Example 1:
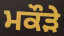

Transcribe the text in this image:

ਮਕੌੜੇ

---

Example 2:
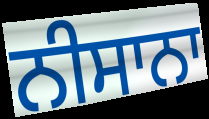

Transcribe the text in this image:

ਨੀਸਾਨਾ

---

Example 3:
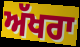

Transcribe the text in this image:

ਅੱਖਰਾ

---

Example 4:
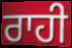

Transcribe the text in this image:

ਰਾਹੀ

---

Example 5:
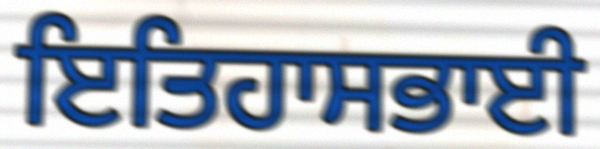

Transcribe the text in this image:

ਇਤਿਹਾਸਭਾਈ